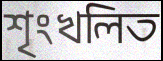
শৃংখলিত